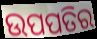
ଉପପତିର